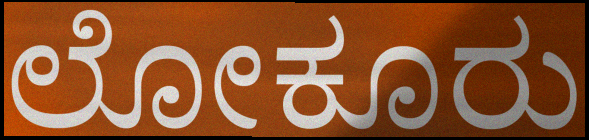
ಲೋಕೂರು